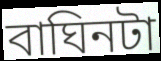
বাঘিনটা